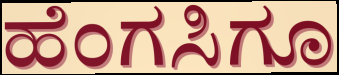
ಹೆಂಗಸಿಗೂ